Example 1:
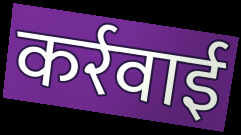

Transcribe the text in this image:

कर्रवाई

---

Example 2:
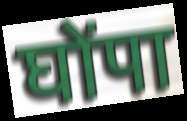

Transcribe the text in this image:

घोंपा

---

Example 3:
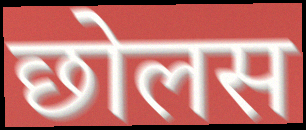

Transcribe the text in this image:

छोलस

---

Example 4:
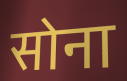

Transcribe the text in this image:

सोना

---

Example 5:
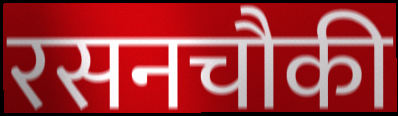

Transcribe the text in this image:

रसनचौकी